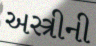
અસ્ત્રીની